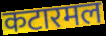
कटारमल